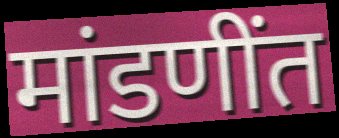
मांडणींत